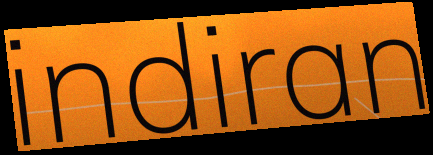
indiran